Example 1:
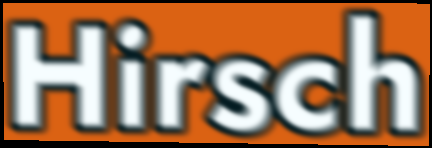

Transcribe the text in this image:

Hirsch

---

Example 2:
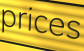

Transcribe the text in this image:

prices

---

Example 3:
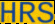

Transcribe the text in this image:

HRS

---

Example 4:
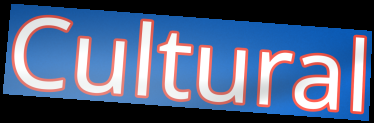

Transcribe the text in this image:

Cultural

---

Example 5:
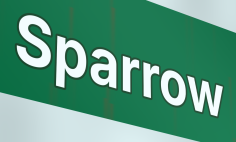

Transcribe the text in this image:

Sparrow